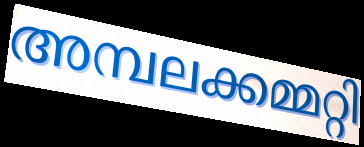
അമ്പലക്കമ്മറ്റി